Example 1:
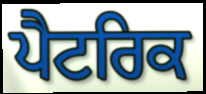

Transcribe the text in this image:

ਪੈਟਰਿਕ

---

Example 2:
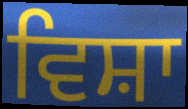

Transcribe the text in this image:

ਵਿਸ਼ਾ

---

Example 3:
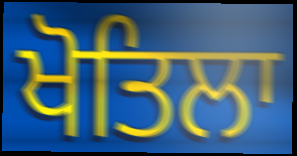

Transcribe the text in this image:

ਖੋਤਿਲਾ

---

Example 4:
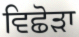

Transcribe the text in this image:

ਵਿਛੋੜਾ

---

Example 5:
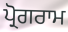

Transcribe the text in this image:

ਪ੍ਰੋਗਰਾਮ